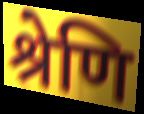
श्रेणि